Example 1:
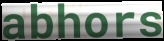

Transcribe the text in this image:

abhors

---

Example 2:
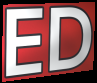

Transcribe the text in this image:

ED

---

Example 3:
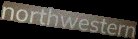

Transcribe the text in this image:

northwestern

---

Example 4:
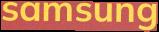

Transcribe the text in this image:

samsung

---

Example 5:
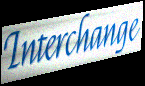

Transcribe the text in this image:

Interchange